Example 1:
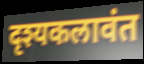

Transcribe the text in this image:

दृश्यकलावंत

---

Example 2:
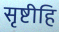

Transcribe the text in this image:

सृष्टीहि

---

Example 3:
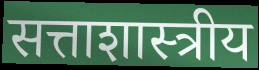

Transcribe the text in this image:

सत्ताशास्त्रीय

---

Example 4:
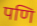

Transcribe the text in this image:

पणि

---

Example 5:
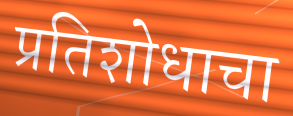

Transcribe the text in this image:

प्रतिशोधाचा